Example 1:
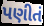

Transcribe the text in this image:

પણીતં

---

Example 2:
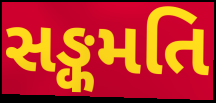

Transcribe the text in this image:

સઙ્કમતિ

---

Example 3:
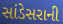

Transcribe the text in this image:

સાંડેસરાની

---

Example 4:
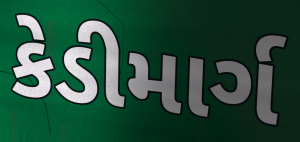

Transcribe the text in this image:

કેડીમાર્ગ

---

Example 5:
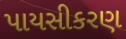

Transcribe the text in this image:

પાયસીકરણ